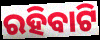
ରହିବାଟି